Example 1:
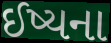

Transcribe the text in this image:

ઈષ્યના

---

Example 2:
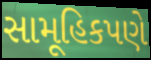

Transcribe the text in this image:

સામૂહિકપણે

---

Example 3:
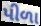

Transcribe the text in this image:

પીળા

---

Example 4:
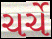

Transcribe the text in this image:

ચર્ચે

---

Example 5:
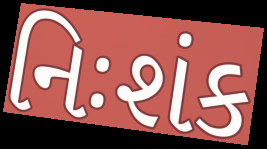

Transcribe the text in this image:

નિઃશંક